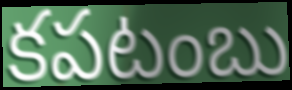
కపటంబు